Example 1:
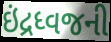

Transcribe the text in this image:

ઇંદ્રધ્વજની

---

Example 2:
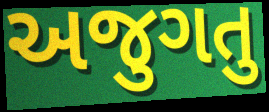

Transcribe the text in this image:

અજુગતુ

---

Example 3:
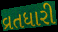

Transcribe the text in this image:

વ્રતધારી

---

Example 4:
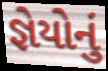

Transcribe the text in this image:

જ્ઞેયોનું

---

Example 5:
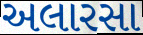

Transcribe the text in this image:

અલારસા